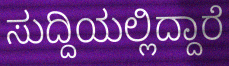
ಸುದ್ದಿಯಲ್ಲಿದ್ದಾರೆ